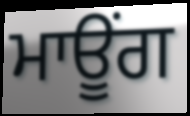
ਮਾਊਂਗ